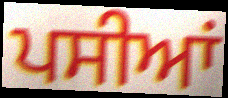
ਪਸੀਆਂ